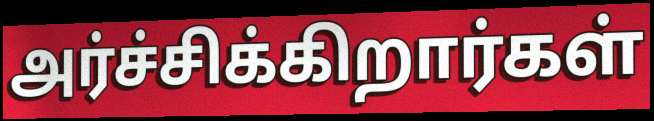
அர்ச்சிக்கிறார்கள்